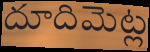
దూదిమెట్ల